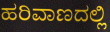
ಹರಿವಾಣದಲ್ಲಿ